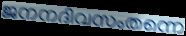
ജനനദിവസംതന്നെ